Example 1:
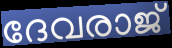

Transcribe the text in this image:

ദേവരാജ്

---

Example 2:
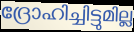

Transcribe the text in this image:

ദ്രോഹിച്ചിട്ടുമില്ല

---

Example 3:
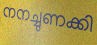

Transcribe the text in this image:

നനച്ചുണക്കി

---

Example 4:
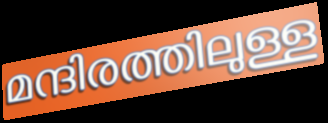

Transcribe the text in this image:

മന്ദിരത്തിലുള്ള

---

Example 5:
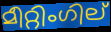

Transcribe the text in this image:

മീറ്റിംഗില്